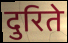
दुरिते